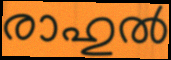
രാഹുൽ